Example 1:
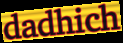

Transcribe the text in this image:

dadhich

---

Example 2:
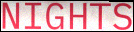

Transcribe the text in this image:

NIGHTS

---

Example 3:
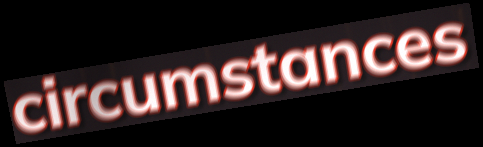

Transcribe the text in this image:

circumstances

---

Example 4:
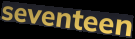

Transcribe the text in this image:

seventeen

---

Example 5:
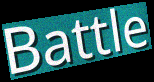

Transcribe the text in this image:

Battle